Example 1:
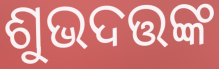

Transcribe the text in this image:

ଶୁଭଦତ୍ତଙ୍କ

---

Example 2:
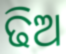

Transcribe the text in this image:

ଢିଅ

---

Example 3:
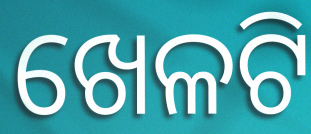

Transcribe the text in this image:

ଖେଳଟି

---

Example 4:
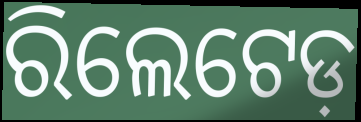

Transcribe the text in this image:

ରିଲେଟେଡ଼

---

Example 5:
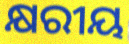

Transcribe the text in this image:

କ୍ଷରୀୟ